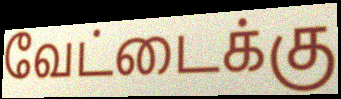
வேட்டைக்கு